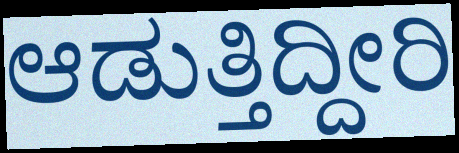
ಆಡುತ್ತಿದ್ದೀರಿ